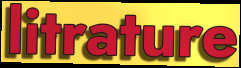
litrature